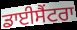
ਡਾਈਸੈਂਟਰਾ